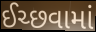
ઈચ્છવામાં